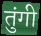
तुंगी